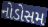
નોડોસમ